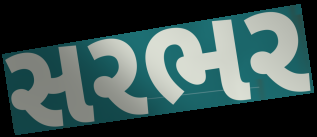
સરભર